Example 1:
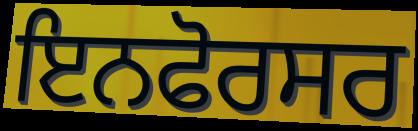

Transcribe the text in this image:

ਇਨਫੋਰਸਰ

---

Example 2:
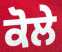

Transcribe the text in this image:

ਕੋਲੇ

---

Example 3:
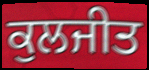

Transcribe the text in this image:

ਕੁਲਜੀਤ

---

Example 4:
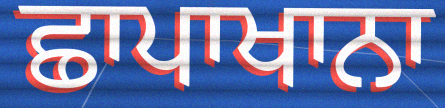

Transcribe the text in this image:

ਛਾਪਾਖਾਨਾ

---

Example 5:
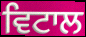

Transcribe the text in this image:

ਵਿਟਾਲ